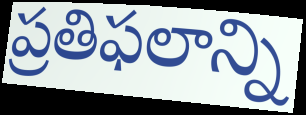
ప్రతిఫలాన్ని